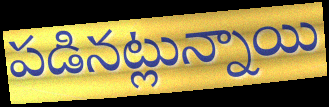
పడినట్లున్నాయి